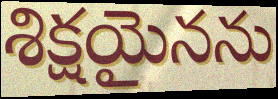
శిక్షయైనను